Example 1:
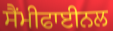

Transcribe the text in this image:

ਸੈਂਮੀਫਾਈਨਲ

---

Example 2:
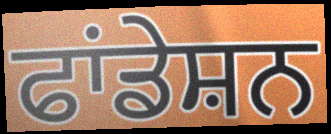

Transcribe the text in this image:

ਫਾਂਡੇਸ਼ਨ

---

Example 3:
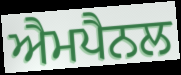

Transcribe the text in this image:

ਐਮਪੈਨਲ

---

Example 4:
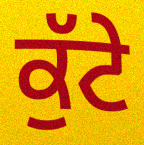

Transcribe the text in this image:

ਕੁੱਟੇ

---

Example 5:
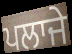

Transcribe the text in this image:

ਪਲਾਜੇ